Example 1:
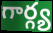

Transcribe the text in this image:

గార్గ్య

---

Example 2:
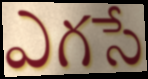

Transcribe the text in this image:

ఎగసే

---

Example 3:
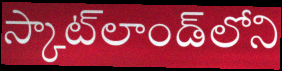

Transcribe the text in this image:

స్కాట్‌లాండ్‌లోని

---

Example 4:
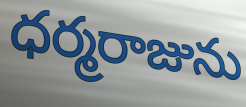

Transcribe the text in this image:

ధర్మరాజును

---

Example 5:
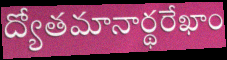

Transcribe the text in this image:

ద్యోతమానార్థరేఖాం